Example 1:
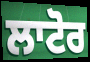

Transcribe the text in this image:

ਲਾਟੋਰ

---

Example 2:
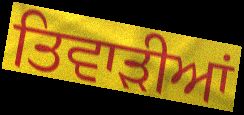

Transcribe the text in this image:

ਤਿਵਾੜੀਆਂ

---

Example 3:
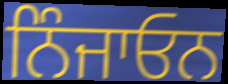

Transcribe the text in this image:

ਨਿੰਜਾਓਨ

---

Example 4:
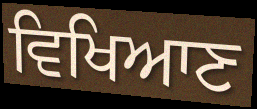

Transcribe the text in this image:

ਵਿਖਿਆਣ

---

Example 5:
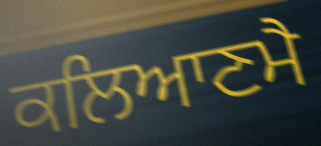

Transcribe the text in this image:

ਕਲਿਆਣਮੈ